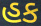
હક